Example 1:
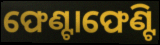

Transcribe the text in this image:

ଫେଣ୍ଟାଫେଣ୍ଟି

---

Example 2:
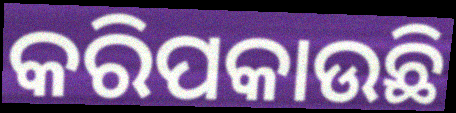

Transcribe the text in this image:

କରିପକାଉଛି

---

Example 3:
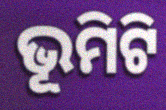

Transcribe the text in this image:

ଭୂମିଟି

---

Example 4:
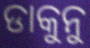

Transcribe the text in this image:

ଡାକୁନୁ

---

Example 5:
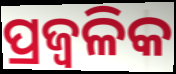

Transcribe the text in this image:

ପ୍ରଜ୍ଵଳିକ